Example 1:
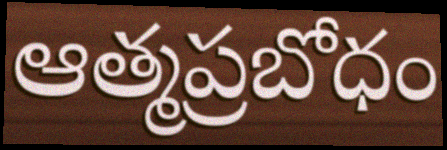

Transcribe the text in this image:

ఆత్మప్రబోధం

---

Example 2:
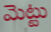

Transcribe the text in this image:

మెట్టు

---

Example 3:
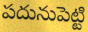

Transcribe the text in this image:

పదునుపెట్టి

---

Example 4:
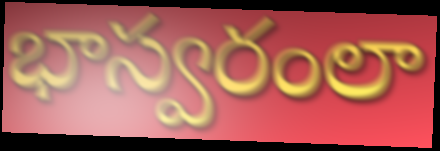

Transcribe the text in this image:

భాస్వరంలా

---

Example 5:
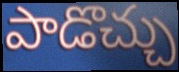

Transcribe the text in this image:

పాడొచ్చు